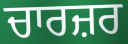
ਚਾਰਜ਼ਰ